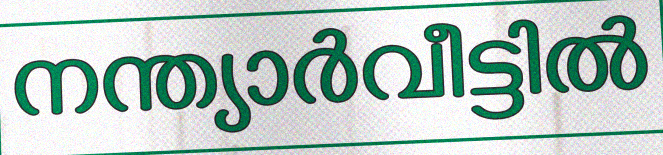
നന്ത്യാർവീട്ടിൽ